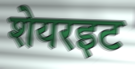
शेयरइट